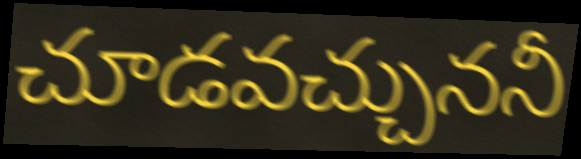
చూడవచ్చుననీ